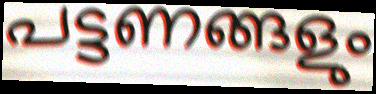
പട്ടണങ്ങളും